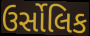
ઉર્સોલિક